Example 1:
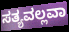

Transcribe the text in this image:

ಸತ್ಯವಲ್ಲವಾ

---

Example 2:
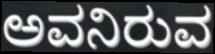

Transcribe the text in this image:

ಅವನಿರುವ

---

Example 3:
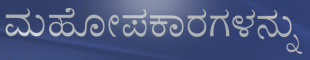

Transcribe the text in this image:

ಮಹೋಪಕಾರಗಳನ್ನು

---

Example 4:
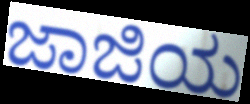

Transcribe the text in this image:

ಜಾಜಿಯ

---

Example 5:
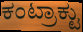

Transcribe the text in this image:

ಕಂಟ್ರಾಕ್ಟು